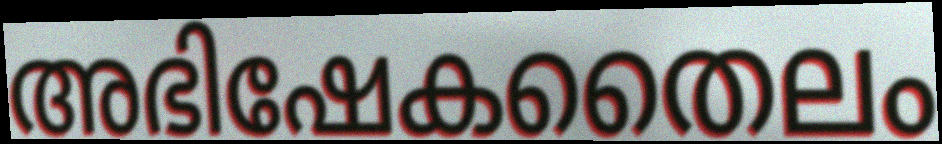
അഭിഷേകതൈലം